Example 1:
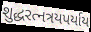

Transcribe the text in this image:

શુદ્ધરત્નત્રયપર્યાય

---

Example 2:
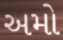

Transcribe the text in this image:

અમો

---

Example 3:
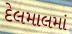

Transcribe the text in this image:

દેલમાલમાં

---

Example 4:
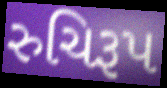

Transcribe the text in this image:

રુચિરૂપ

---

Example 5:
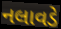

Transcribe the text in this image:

નલાવડે